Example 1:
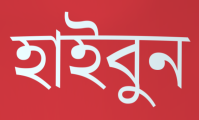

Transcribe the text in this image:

হাইবুন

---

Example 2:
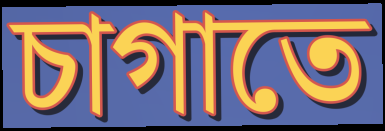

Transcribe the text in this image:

চাগাতে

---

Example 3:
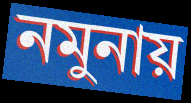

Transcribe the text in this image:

নমুনায়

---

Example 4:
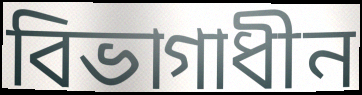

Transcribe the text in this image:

বিভাগাধীন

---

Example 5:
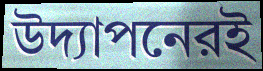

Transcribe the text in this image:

উদ্যাপনেরই